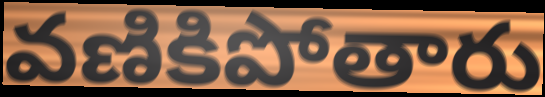
వణికిపోతారు